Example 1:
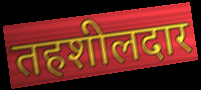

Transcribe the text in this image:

तहशीलदार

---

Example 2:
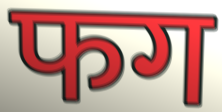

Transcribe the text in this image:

फग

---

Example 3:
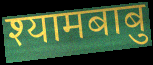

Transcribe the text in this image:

श्यामबाबु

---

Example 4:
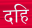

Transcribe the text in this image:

दहि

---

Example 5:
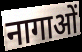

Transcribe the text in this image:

नागाओं